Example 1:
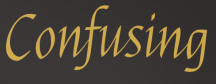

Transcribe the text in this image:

Confusing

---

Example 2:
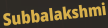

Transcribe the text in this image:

Subbalakshmi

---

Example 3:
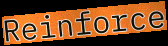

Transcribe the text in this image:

Reinforce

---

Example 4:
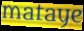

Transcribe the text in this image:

mataye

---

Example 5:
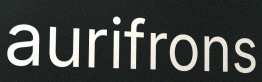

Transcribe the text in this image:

aurifrons